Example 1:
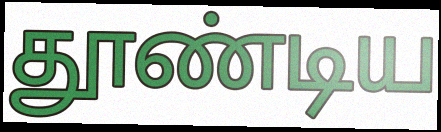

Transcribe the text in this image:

தூண்டிய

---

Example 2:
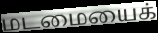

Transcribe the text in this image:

மடமையைக்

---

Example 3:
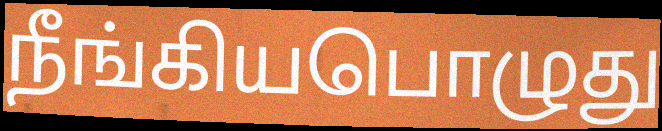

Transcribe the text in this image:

நீங்கியபொழுது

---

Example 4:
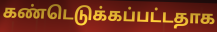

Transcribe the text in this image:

கண்டெடுக்கப்பட்டதாக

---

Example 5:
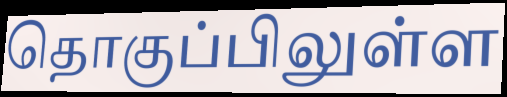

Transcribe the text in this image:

தொகுப்பிலுள்ள